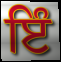
ਇੰ